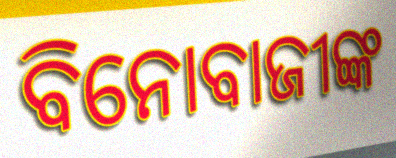
ବିନୋବାଜୀଙ୍କ